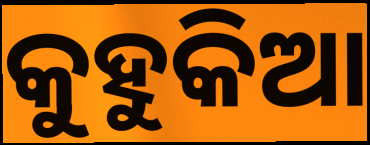
କୁହୁକିଆ